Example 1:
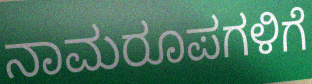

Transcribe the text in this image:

ನಾಮರೂಪಗಳಿಗೆ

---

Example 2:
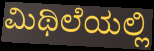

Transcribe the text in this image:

ಮಿಥಿಲೆಯಲ್ಲಿ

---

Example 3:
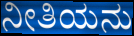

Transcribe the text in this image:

ನೀತಿಯನು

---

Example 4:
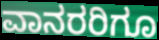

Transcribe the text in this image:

ವಾನರರಿಗೂ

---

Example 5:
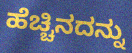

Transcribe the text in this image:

ಹೆಚ್ಚಿನದನ್ನು